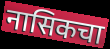
नासिकचा